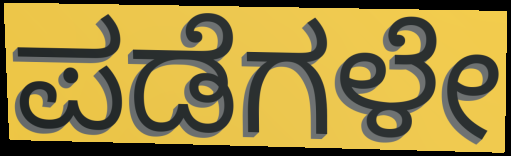
ಪಡೆಗಳೇ